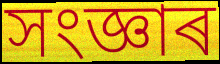
সংজ্ঞাৰ